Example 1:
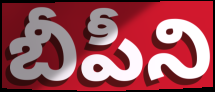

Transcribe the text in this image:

బీపీని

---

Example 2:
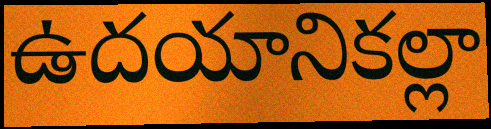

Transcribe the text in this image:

ఉదయానికల్లా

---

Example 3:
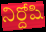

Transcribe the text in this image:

నిర్దోషి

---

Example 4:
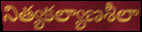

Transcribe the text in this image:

నిత్యకల్యాణశీలా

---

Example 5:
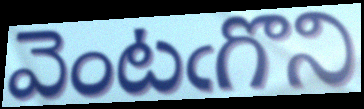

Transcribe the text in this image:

వెంటఁగొని